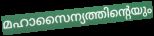
മഹാസൈന്യത്തിന്റെയും